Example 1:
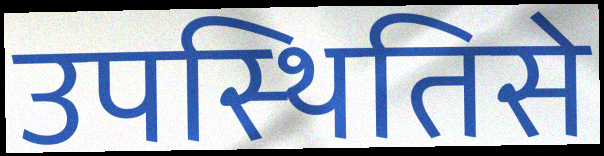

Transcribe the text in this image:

उपस्थितिसे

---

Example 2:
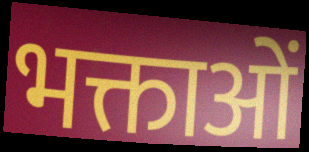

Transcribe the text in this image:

भक्ताओं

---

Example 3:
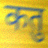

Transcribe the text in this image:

कतु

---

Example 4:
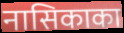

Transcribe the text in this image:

नासिकाका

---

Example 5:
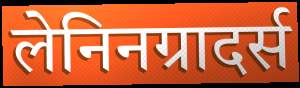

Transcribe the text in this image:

लेनिनग्रादर्स